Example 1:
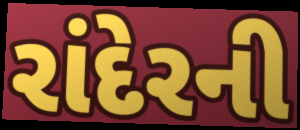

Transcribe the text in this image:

રાંદેરની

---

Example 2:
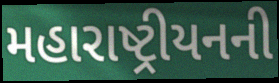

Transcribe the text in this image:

મહારાષ્ટ્રીયનની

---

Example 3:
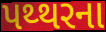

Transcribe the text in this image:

પથ્થરના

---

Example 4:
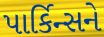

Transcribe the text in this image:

પાર્કિન્સને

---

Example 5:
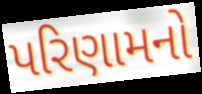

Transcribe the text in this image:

પરિણામનો